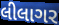
લીલાગર